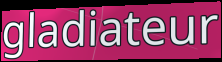
gladiateur